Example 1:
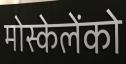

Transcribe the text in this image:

मोस्केलेंको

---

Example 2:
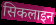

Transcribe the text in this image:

सिकलाइन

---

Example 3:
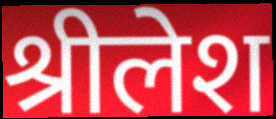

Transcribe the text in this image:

श्रीलेश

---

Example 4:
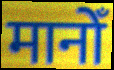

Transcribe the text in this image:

मानोँ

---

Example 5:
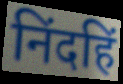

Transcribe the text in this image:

निंदहिं